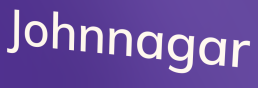
Johnnagar